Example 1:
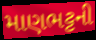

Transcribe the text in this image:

માણભટ્ટની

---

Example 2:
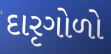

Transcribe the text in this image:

દારૃગોળો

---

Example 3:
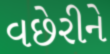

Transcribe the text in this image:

વછેરીને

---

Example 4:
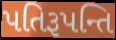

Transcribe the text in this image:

પતિરૂપન્તિ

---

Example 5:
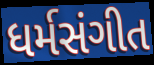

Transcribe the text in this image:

ધર્મસંગીત